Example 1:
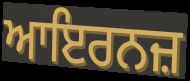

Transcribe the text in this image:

ਆਇਰਨਜ਼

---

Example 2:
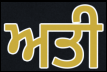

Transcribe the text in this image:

ਅਤੀ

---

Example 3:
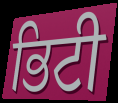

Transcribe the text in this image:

ਭਿਟੀ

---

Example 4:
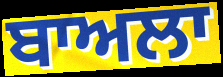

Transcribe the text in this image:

ਬਾਅਲਾ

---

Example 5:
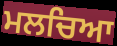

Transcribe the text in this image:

ਮਲਚਿਆ